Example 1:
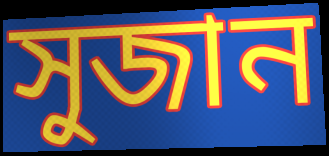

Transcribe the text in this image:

সুজান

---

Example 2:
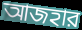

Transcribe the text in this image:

আজহার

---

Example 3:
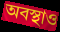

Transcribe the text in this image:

অবস্থাও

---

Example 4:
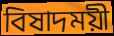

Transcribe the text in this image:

বিষাদময়ী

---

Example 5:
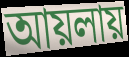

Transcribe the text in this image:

আয়লায়